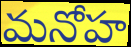
మనోహ